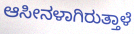
ಆಸೀನಳಾಗಿರುತ್ತಾಳೆ